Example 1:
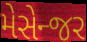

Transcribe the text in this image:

મેસેન્જર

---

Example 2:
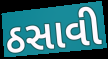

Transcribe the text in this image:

ઠસાવી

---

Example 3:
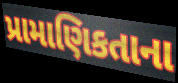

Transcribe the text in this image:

પ્રામાણિકતાના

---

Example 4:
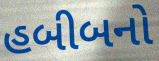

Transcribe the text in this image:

હબીબનો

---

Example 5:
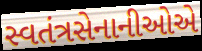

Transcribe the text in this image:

સ્વતંત્રસેનાનીઓએ